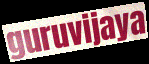
guruvijaya